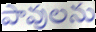
పావులను